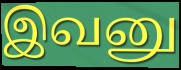
இவனு